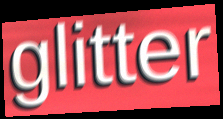
glitter